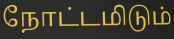
நோட்டமிடும்